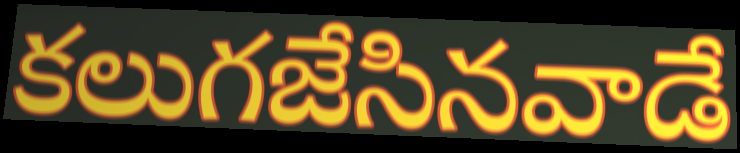
కలుగజేసినవాడే